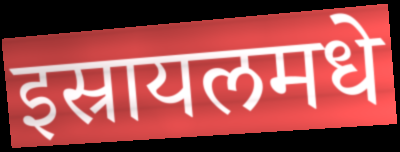
इस्रायलमधे